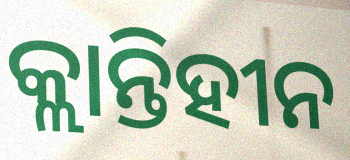
କ୍ଲାନ୍ତିହୀନ